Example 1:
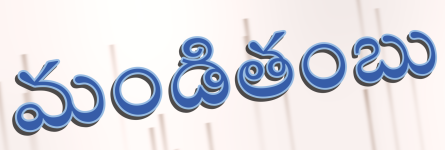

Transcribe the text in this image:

మండితంబు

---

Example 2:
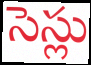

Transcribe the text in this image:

సెస్లు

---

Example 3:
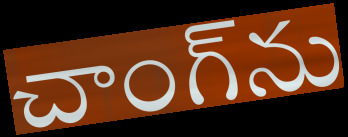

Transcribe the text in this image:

చాంగ్‌ను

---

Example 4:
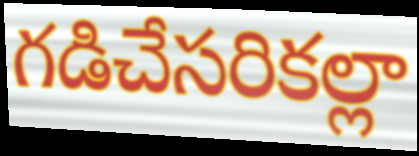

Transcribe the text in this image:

గడిచేసరికల్లా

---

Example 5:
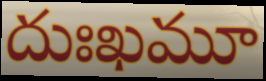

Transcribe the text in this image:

దుఃఖమూ